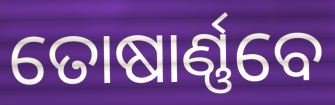
ତୋଷାର୍ଣ୍ଣବେ